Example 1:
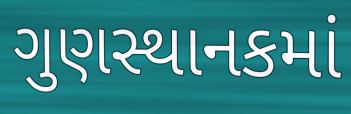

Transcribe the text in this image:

ગુણસ્થાનકમાં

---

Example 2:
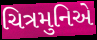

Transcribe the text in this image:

ચિત્રમુનિએ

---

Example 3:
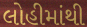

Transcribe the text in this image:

લોહીમાંથી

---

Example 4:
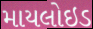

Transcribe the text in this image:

માયલોઇડ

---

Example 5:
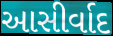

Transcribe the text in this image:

આસીર્વાદ